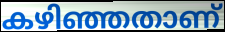
കഴിഞ്ഞതാണ്